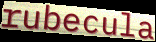
rubecula